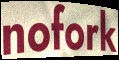
nofork